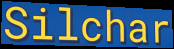
Silchar